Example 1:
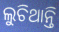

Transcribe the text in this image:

ଲୁଚିଥାନ୍ତି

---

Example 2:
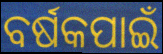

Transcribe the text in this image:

ବର୍ଷକପାଇଁ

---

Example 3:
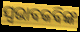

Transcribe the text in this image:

ସ୍ଵଭାବକବିଙ୍କ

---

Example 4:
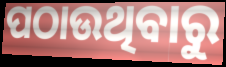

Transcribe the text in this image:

ପଠାଉଥିବାରୁ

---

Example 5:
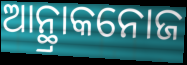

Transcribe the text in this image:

ଆନ୍ଥ୍ରାକନୋଜ